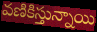
వణికిస్తున్నాయి